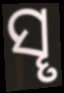
ସୄ